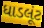
ધાડલૂંટ